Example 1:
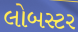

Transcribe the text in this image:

લોબસ્ટર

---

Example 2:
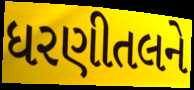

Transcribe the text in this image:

ધરણીતલને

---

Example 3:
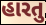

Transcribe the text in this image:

હારતુ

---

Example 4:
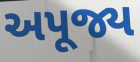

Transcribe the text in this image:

અપૂજ્ય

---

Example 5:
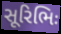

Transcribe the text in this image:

સૂરિભિઃ